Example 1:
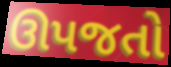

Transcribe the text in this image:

ઊપજતો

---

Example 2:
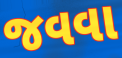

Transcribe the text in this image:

જવવા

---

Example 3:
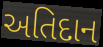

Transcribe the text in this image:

અતિદાન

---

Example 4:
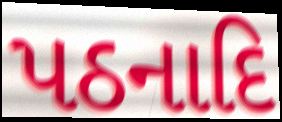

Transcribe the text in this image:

પઠનાદિ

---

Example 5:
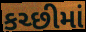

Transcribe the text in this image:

કચ્છીમાં